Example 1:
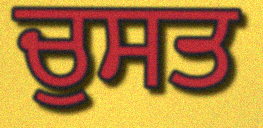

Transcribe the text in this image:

ਚੁਸਤ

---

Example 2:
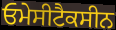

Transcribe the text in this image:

ਓਮੇਸੀਟੈਕਸੀਨ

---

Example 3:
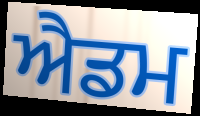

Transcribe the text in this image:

ਐਡਮ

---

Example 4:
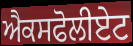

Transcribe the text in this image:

ਐਕਸਫੋਲੀਏਟ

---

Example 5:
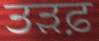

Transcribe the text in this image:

ਤੜਫ਼